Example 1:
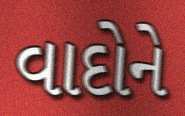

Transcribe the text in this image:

વાદોને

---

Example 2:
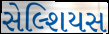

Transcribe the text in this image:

સેલ્શિયસ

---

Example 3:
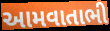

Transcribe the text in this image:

આમવાતાભી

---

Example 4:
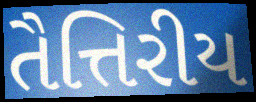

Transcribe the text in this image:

તૈત્તિરીય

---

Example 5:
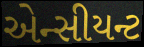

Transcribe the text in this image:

એન્સીયન્ટ